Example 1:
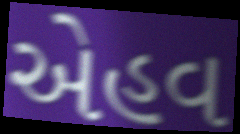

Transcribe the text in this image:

એહવ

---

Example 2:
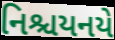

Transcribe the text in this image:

નિશ્ચયનયે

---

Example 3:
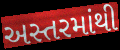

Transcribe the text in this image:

અસ્તરમાંથી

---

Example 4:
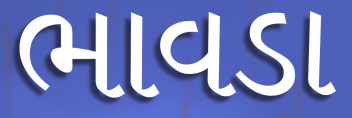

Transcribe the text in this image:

ભાવડા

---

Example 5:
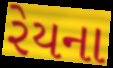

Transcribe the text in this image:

રેયના